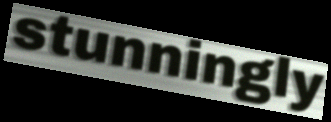
stunningly